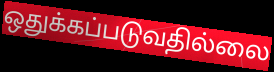
ஒதுக்கப்படுவதில்லை